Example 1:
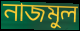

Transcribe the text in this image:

নাজমুল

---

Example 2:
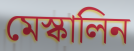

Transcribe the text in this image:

মেস্কালিন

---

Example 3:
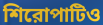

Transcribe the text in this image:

শিরোপাটিও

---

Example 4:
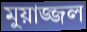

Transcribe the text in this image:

মুয়াজ্জল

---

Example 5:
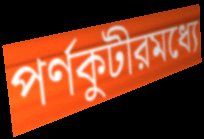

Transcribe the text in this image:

পর্ণকুটীরমধ্যে